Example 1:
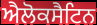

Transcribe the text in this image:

ਐਲੋਕਸੈਟਿਨ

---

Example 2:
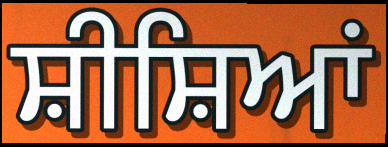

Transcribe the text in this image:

ਸ਼ੀਸ਼ਿਆਂ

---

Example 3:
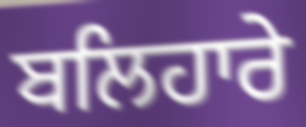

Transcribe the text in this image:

ਬਲਿਹਾਰੇ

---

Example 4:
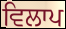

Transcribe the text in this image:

ਵਿਲਾਪ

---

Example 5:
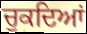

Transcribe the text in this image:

ਚੁਕਦਿਆਂ